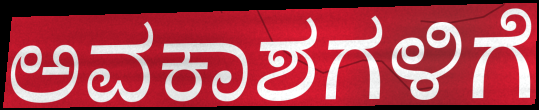
ಅವಕಾಶಗಳಿಗೆ